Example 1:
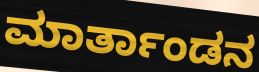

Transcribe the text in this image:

ಮಾರ್ತಾಂಡನ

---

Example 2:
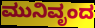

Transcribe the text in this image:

ಮುನಿವೃಂದ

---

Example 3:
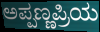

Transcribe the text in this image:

ಅಪ್ಪಣ್ಣಪ್ರಿಯ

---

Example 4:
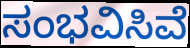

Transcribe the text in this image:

ಸಂಭವಿಸಿವೆ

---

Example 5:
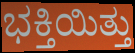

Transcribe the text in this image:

ಭಕ್ತಿಯಿತ್ತು